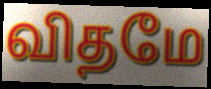
விதமே